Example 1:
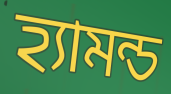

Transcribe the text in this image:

হ্যামন্ড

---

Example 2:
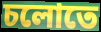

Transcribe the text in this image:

চলোতে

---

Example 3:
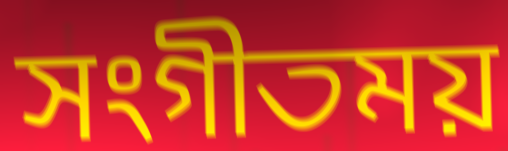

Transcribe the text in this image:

সংগীতময়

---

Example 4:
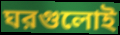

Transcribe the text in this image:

ঘরগুলোই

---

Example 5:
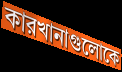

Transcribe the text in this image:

কারখানাগুলোকে